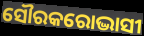
ସୌରକରୋଦ୍ଭାସୀ